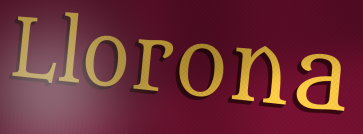
Llorona